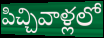
పిచ్చివాళ్లలో